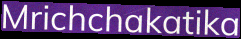
Mrichchakatika